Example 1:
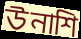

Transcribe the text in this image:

উনাশি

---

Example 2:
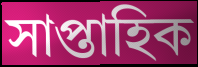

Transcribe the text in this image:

সাপ্তাহিক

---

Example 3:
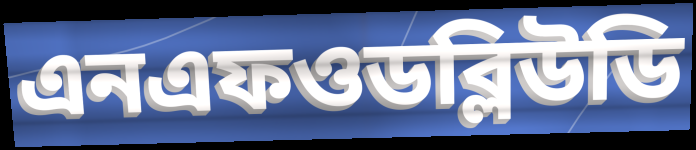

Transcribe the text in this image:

এনএফওডব্লিউডি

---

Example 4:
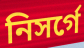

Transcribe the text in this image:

নিসর্গে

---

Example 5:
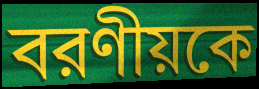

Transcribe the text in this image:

বরণীয়কে